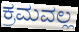
ಕ್ರಮವಲ್ಲ